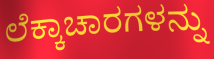
ಲೆಕ್ಕಾಚಾರಗಳನ್ನು